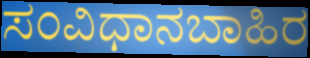
ಸಂವಿಧಾನಬಾಹಿರ